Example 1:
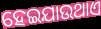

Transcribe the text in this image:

ହେଇଯାଉଥାଏ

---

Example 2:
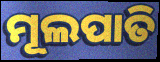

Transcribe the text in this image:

ମୂଲପାତି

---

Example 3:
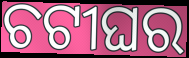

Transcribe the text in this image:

ଚଟୀଘର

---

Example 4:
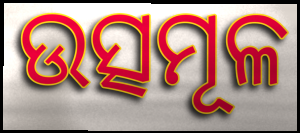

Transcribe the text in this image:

ଉତ୍ସମୂଳ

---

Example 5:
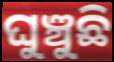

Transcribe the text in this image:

ଘୁଞ୍ଚୁଛି